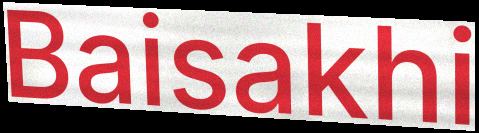
Baisakhi